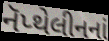
નૅપ્થેલીનનાં